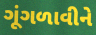
ગૂંગળાવીને